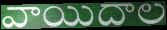
వాయిదాల